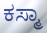
ಕಸ್ಮಾ